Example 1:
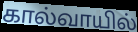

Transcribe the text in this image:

கால்வாயில்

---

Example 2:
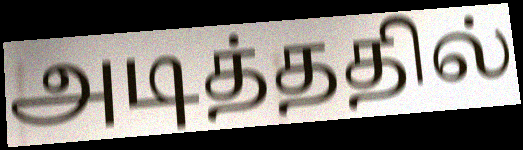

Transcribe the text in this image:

அடித்ததில்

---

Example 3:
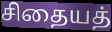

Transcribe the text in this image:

சிதையத்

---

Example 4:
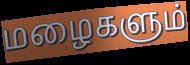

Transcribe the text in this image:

மழைகளும்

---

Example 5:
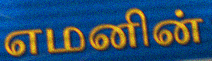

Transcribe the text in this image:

எமனின்